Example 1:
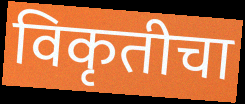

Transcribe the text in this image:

विकृतीचा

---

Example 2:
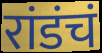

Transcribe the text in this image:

रांडंचं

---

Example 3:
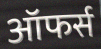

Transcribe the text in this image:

ऑफर्स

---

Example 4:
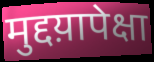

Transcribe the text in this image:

मुद्दय़ापेक्षा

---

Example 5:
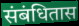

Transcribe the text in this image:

संबंधितास